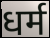
धर्म